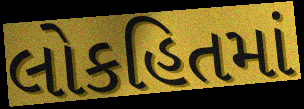
લોકહિતમાં